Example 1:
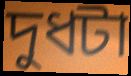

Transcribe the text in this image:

দুধটা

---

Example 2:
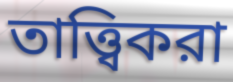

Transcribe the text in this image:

তাত্ত্বিকরা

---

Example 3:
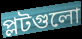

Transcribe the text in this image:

প্লটগুলো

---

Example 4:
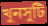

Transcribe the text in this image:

খুনসুটি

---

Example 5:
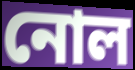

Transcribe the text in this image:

নোল